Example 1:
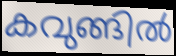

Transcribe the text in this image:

കവുങ്ങിൽ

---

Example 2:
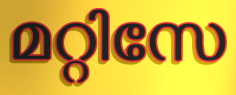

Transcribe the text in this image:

മറ്റിസേ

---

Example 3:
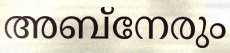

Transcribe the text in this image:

അബ്നേരും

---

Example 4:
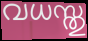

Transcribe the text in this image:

വധസ്തു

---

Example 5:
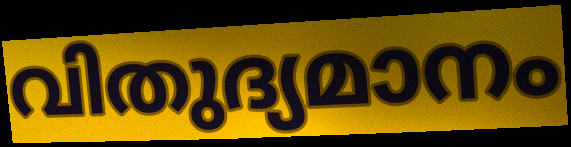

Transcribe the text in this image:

വിതുദ്യമാനം